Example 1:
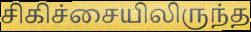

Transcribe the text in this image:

சிகிச்சையிலிருந்த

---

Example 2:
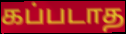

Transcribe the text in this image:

கப்படாத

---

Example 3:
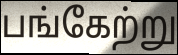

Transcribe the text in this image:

பங்கேற்று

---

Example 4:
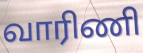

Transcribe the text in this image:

வாரிணி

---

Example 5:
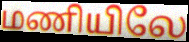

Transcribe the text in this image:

மணியிலே